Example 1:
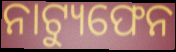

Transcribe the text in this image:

ନାଟ୍ୟୁଫେନ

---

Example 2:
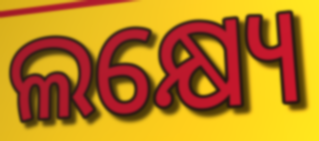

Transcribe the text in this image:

ଲକ୍ଷ୍ୟେ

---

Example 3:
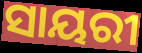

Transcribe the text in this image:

ସାୟରୀ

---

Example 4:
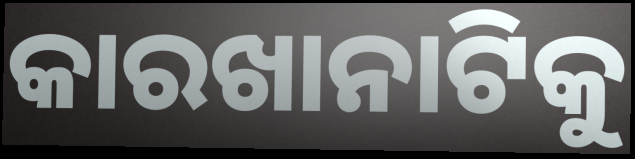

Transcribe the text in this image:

କାରଖାନାଟିକୁ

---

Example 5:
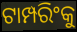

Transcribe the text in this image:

ଟାମ୍ପରିଂକୁ